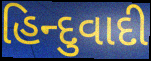
હિન્દુવાદી